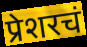
प्रेशरचं